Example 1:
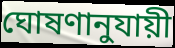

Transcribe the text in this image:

ঘোষণানুযায়ী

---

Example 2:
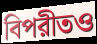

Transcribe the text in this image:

বিপরীতও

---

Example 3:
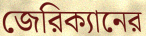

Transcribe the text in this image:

জেরিক্যানের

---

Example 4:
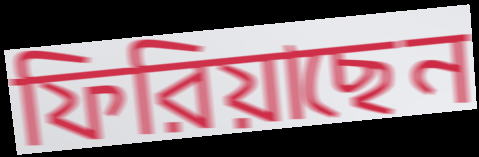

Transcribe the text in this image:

ফিরিয়াছেন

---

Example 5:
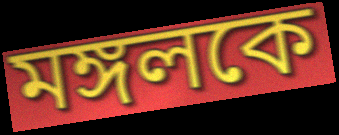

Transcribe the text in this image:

মঙ্গলকে